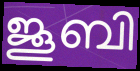
ജൂബി